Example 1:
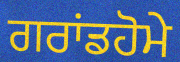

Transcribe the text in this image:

ਗਰਾਂਡਹੋਮੇ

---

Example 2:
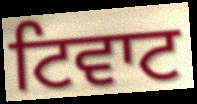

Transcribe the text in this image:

ਟਿਵਾਟ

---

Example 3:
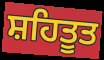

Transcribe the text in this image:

ਸ਼ਹਿਤੂਤ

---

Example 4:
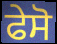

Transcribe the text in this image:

ਫੇਸੋ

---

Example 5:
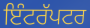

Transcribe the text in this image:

ਇੰਟਰੱਪਟਰ